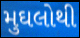
મુઘલોથી